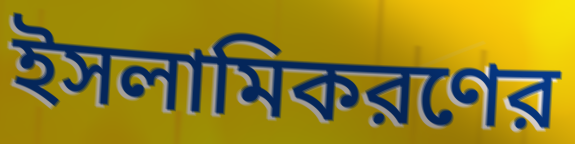
ইসলামিকরণের